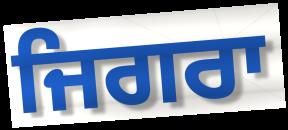
ਜਿਗਰਾ